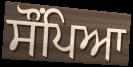
ਸੌਂਪਿਆ